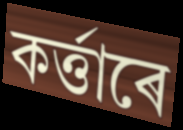
কৰ্ত্তাৰে